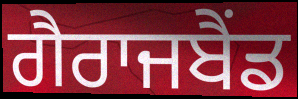
ਗੈਰਾਜਬੈਂਡ